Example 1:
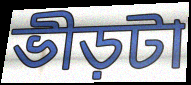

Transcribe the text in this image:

ভীড়টা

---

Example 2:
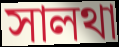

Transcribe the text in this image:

সালথা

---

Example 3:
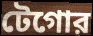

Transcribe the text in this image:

টেগোর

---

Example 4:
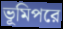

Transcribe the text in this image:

ভূমিপরে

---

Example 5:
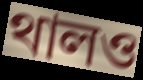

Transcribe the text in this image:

থালও